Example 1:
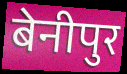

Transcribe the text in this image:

बेनीपुर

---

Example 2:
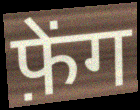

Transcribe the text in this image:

फ़ेंग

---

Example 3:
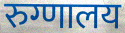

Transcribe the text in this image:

रुग्णालय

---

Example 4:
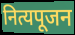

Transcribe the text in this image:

नित्यपूजन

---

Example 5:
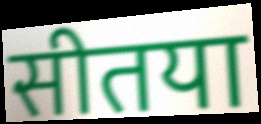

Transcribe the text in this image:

सीतया